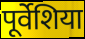
पूर्वेशिया